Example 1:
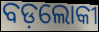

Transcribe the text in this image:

ବଡ଼ଲୋକୀ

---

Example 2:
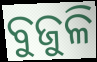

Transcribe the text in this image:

ବୁଜୁଳି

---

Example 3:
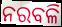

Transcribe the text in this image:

ନରବଳି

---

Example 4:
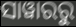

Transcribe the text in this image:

ସାୱାରରୁ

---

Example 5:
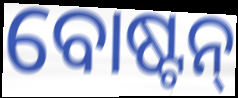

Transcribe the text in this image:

ବୋଷ୍ଟନ୍